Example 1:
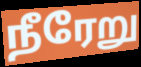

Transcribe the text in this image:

நீரேறு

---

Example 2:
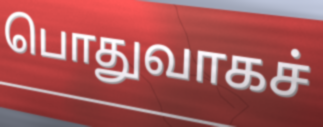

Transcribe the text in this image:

பொதுவாகச்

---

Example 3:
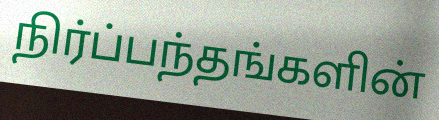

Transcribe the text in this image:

நிர்ப்பந்தங்களின்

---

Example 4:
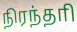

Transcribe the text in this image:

நிரந்தரி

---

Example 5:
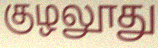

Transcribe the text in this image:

குழலூது